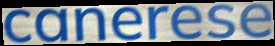
canerese